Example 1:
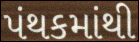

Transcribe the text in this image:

પંથકમાંથી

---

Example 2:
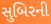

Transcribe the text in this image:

સુબિરની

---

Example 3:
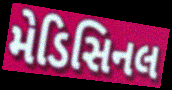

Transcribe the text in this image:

મેડિસિનલ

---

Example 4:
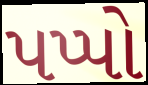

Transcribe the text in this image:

પપ્પો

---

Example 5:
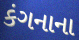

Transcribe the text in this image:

કંગનાના